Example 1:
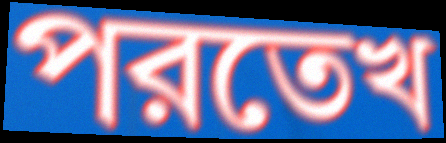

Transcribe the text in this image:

পরতেখ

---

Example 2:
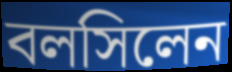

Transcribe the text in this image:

বলসিলেন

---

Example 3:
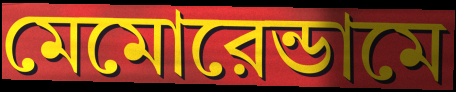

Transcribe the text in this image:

মেমোরেন্ডামে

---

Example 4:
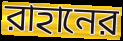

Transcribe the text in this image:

রাহানের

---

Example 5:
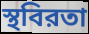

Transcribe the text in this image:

স্থবিরতা